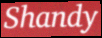
Shandy